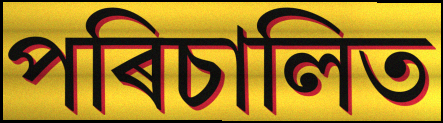
পৰিচালিত